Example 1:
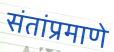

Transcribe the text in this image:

संतांप्रमाणे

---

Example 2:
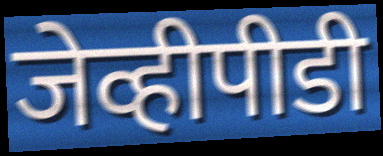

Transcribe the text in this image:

जेव्हीपीडी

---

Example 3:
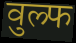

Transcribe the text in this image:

वुल्फ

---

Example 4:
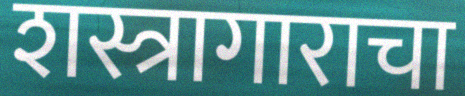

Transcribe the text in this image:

शस्त्रागाराचा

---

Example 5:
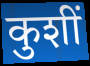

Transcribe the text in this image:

कुशीं